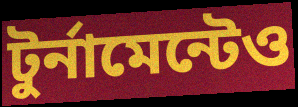
টুর্নামেন্টেও